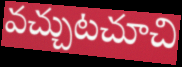
వచ్చుటచూచి